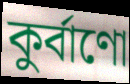
কুর্বাণো